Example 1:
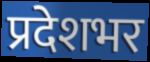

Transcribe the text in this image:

प्रदेशभर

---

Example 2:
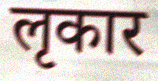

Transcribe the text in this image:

लृकार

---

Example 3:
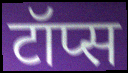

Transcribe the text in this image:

टॉप्स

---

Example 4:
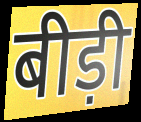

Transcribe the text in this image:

बीड़ी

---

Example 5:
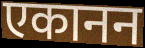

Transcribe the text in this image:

एकानन